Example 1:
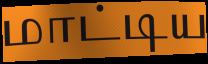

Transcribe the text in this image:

மாட்டிய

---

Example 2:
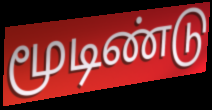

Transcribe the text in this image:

மூடிண்டு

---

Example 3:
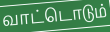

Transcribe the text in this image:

வாட்டொடும்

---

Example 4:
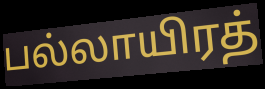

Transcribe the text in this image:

பல்லாயிரத்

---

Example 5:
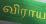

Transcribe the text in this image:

விராய